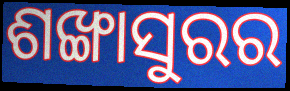
ଶଙ୍ଖାସୁରର